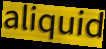
aliquid